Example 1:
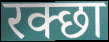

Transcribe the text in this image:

रक्छा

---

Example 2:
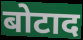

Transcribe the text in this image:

बोटाद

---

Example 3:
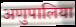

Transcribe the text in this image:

अणुपालिया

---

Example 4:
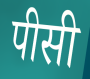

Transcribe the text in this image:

पीसी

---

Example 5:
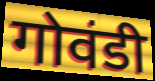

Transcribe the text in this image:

गोवंडी